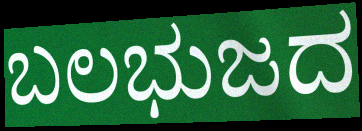
ಬಲಭುಜದ